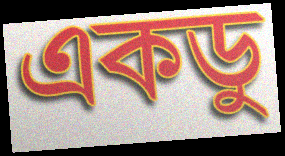
একডু